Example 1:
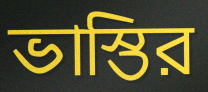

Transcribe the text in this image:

ভাস্তির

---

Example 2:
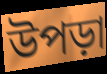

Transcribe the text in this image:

উপড়া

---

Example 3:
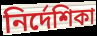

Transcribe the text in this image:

নির্দেশিকা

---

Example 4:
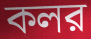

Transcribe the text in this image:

কলর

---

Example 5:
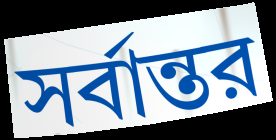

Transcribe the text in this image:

সর্বান্তর